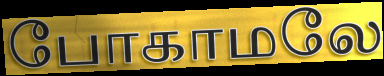
போகாமலே